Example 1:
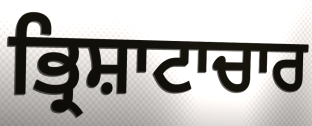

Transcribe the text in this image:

ਭ੍ਰਿਸ਼ਾਟਾਚਾਰ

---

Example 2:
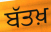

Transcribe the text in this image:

ਬੱਤਖ਼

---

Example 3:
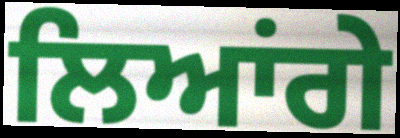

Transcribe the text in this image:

ਲਿਆਂਗੇ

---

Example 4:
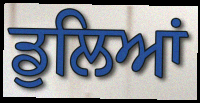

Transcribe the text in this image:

ਡੁਲਿਆਂ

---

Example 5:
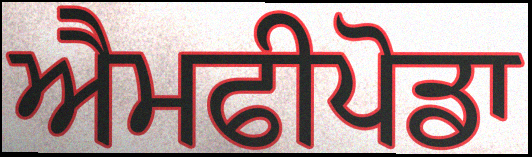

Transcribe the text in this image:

ਐਮਫੀਪੋਡਾ